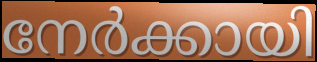
നേർക്കായി